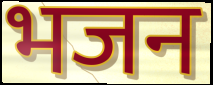
भजन